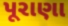
પૂરાણા